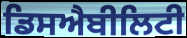
ਡਿਸਐਬੀਲਿਟੀ